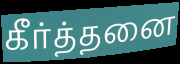
கீர்த்தனை